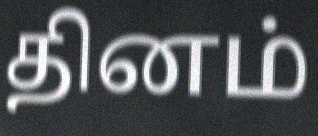
தினம்